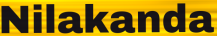
Nilakanda